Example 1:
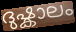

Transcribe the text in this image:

ദുഷ്കാലം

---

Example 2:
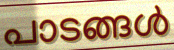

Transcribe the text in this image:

പാടങ്ങൾ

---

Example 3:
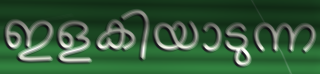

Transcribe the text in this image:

ഇളകിയാടുന്ന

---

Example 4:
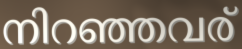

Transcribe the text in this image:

നിറഞ്ഞവര്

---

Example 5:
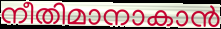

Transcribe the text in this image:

നീതിമാനാകാൻ